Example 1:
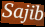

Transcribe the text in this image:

Sajib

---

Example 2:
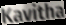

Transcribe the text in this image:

Kavitha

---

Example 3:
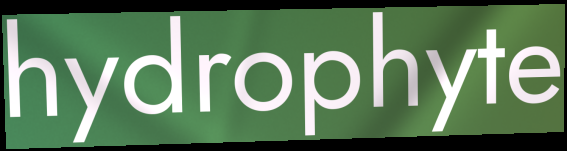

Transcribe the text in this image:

hydrophyte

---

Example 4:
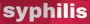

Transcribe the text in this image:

syphilis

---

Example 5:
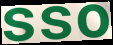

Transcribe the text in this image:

sso